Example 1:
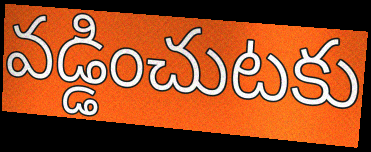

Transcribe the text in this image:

వడ్డించుటకు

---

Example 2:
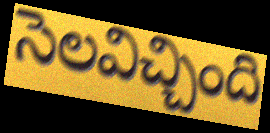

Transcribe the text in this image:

సెలవిచ్చింది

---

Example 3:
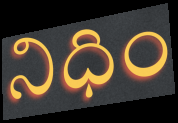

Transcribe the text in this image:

నిధిం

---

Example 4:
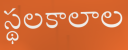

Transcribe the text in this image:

స్థలకాలాల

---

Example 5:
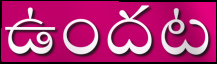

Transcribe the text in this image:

ఉందట